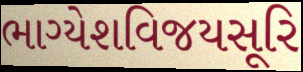
ભાગ્યેશવિજયસૂરિ